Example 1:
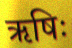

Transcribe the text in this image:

ऋषिः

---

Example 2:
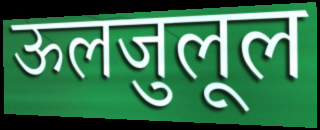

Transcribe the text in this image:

ऊलजुलूल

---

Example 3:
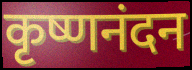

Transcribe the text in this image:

कृष्णनंदन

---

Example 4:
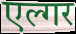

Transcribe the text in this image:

एल्गर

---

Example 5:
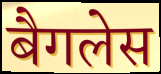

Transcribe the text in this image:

बैगलेस